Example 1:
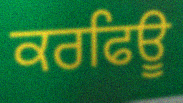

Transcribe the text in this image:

ਕਰਫਿਊ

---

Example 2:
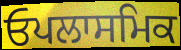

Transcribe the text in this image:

ਓਪਲਾਸਮਿਕ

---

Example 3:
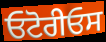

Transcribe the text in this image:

ਓਟੋਰੀਓਸ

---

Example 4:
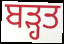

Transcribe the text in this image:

ਬੜ੍ਹਤ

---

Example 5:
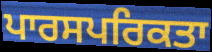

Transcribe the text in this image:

ਪਾਰਸਪਰਿਕਤਾ